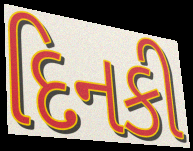
દિનકી